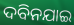
ଦବିନଯାଇ